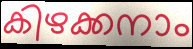
കിഴക്കനാം